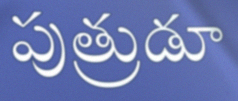
పుత్రుడూ